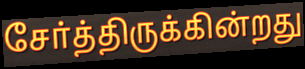
சேர்த்திருக்கின்றது